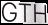
GTH